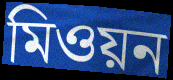
মিওয়ন